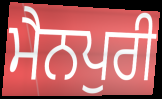
ਮੈਨਪੁਰੀ